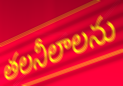
తలనీలాలను